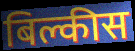
बिल्कीस